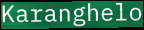
Karanghelo